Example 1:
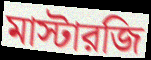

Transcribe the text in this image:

মাস্টারজি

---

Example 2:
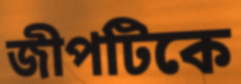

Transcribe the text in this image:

জীপটিকে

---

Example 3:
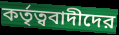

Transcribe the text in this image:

কর্তৃত্ববাদীদের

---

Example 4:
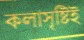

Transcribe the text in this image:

কলাসৃষ্টিই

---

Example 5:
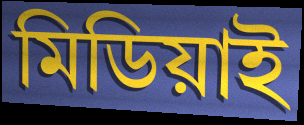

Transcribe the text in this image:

মিডিয়াই